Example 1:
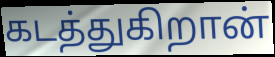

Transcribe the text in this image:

கடத்துகிறான்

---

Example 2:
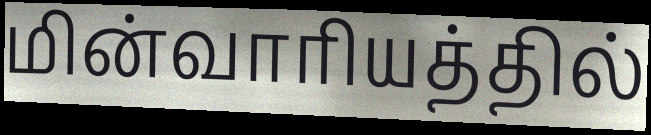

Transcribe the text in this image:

மின்வாரியத்தில்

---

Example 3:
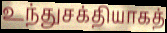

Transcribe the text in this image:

உந்துசக்தியாகத்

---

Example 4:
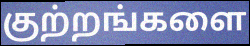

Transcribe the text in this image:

குற்றங்களை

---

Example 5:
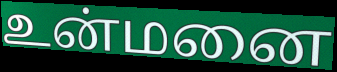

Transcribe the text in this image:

உன்மனை